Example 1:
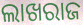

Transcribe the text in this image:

ଲାଖରାଜ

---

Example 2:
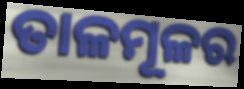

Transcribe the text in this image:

ତାଳମୂଳର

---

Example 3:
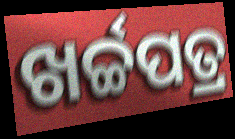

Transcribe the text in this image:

ଖର୍ଚ୍ଚପତ୍ର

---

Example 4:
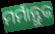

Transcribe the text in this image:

ମର୍ମାନ୍ତୁକ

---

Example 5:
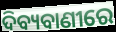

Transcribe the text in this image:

ଦିବ୍ୟବାଣୀରେ